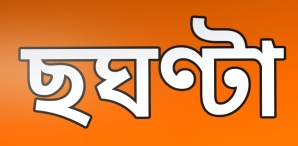
ছঘণ্টা